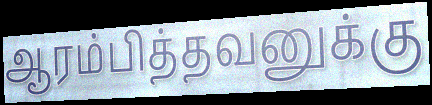
ஆரம்பித்தவனுக்கு